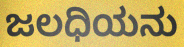
ಜಲಧಿಯನು